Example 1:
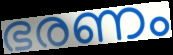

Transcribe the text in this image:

ഭരണം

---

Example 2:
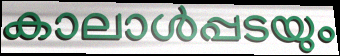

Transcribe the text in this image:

കാലാൾപ്പടയും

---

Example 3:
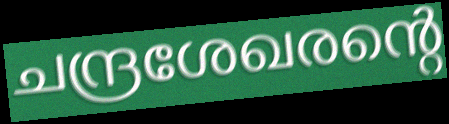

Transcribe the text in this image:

ചന്ദ്രശേഖരന്റെ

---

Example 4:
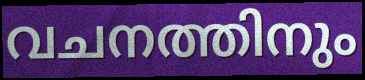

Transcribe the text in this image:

വചനത്തിനും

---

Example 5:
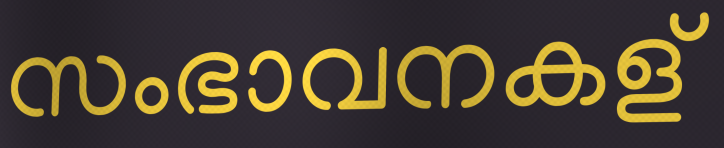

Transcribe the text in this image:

സംഭാവനകള്